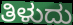
ತಿಳುದು